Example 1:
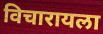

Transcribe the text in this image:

विचारायला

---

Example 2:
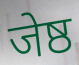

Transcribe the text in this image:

जेष्ठ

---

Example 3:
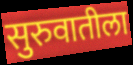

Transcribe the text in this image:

सुरुवातीला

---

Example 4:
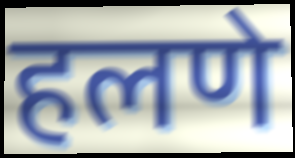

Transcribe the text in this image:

हलणे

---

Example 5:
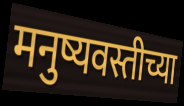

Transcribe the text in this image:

मनुष्यवस्तीच्या